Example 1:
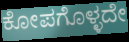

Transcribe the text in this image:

ಕೋಪಗೊಳ್ಳದೇ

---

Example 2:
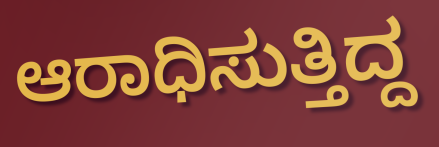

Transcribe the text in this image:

ಆರಾಧಿಸುತ್ತಿದ್ದ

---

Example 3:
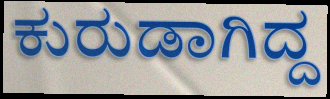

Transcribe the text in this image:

ಕುರುಡಾಗಿದ್ದ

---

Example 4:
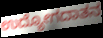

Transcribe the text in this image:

ಉದ್ಯೋಗದಾತನ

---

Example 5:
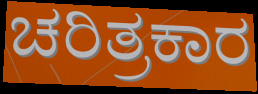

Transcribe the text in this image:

ಚರಿತ್ರಕಾರ